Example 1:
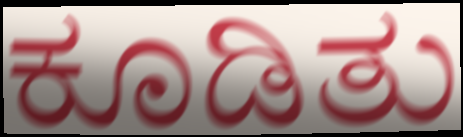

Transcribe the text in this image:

ಕೂಡಿತು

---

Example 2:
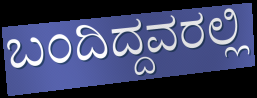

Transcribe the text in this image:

ಬಂದಿದ್ದವರಲ್ಲಿ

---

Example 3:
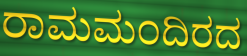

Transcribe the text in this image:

ರಾಮಮಂದಿರದ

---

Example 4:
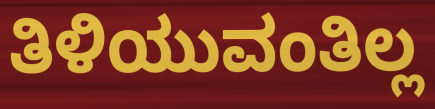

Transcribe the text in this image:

ತಿಳಿಯುವಂತಿಲ್ಲ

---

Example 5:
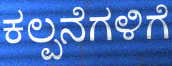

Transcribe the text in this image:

ಕಲ್ಪನೆಗಳಿಗೆ